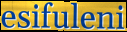
esifuleni